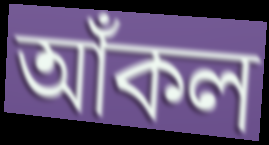
আঁকল